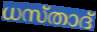
ധസ്താദ്